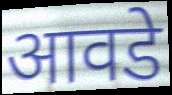
आवडे